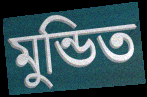
মুন্ডিত